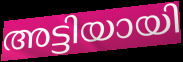
അട്ടിയായി